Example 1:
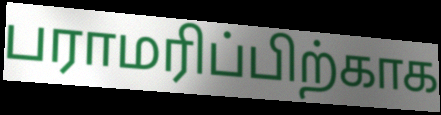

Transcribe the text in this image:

பராமரிப்பிற்காக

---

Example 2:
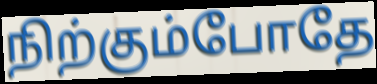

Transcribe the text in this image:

நிற்கும்போதே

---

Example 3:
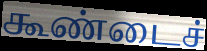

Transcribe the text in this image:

கூண்டைச்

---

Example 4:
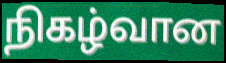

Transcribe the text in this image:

நிகழ்வான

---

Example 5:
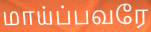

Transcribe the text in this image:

மாய்ப்பவரே